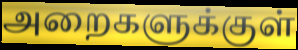
அறைகளுக்குள்